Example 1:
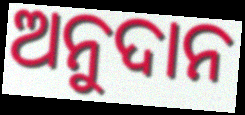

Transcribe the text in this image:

ଅନୁଦାନ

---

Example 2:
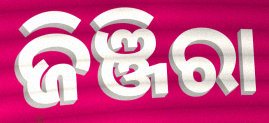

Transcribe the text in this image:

ଜିଞ୍ଜିରା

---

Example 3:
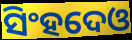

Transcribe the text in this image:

ସିଂହଦେଓ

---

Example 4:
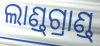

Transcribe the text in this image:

ଲାଣ୍ଡ୍‍ଗ୍ରାଣ୍ଡ୍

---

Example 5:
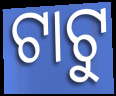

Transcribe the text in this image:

ଟାଟୁ